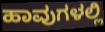
ಹಾವುಗಳಲ್ಲಿ